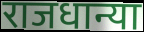
राजधान्या